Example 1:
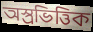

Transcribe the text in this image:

অস্ত্রভিত্তিক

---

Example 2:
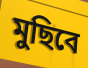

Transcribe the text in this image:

মুছিবে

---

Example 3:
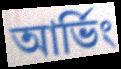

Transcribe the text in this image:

আর্ভিং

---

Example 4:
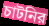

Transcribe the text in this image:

চাটনির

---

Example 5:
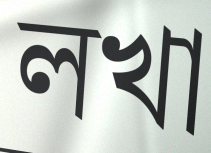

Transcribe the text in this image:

লখা